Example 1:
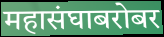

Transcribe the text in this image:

महासंघाबरोबर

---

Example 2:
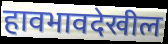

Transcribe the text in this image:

हावभावदेखील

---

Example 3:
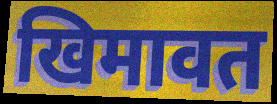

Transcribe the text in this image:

खिमावत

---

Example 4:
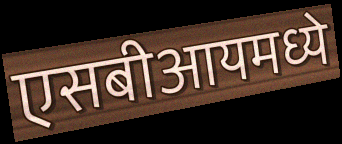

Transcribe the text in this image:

एसबीआयमध्ये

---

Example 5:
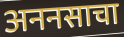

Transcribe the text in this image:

अननसाचा